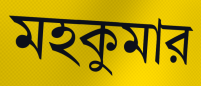
মহকুমার